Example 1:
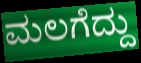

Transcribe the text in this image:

ಮಲಗೆದ್ದು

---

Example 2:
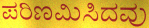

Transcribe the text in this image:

ಪರಿಣಮಿಸಿದವು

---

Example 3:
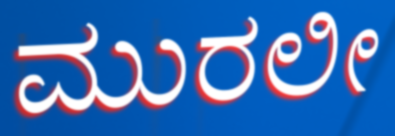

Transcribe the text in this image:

ಮುರಲೀ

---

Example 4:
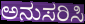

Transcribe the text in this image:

ಅನುಸರಿಸಿ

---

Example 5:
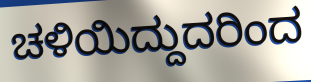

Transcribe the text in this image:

ಚಳಿಯಿದ್ದುದರಿಂದ